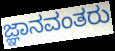
ಜ್ಞಾನವಂತರು